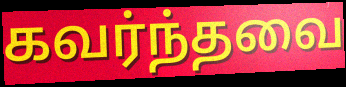
கவர்ந்தவை